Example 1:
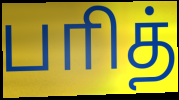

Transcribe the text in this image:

பரித்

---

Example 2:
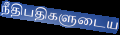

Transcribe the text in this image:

நீதிபதிகளுடைய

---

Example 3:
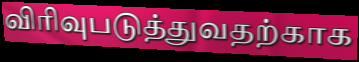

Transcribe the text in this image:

விரிவுபடுத்துவதற்காக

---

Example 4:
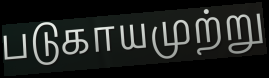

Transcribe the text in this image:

படுகாயமுற்று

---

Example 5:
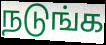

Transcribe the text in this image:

நடுங்க